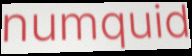
numquid